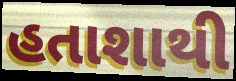
હતાશાથી